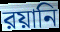
রয়ানি